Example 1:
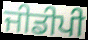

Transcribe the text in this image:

ਜੀਡੀਪੀ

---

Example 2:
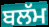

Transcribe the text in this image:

ਬਲੱਮ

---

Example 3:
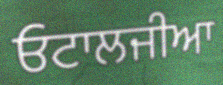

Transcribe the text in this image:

ਓਟਾਲਜੀਆ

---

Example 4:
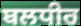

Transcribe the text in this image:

ਬਲਧੀਰ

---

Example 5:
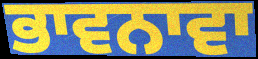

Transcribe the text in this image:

ਭਾਵਨਾਵਾ